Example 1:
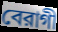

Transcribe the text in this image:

বেরাগী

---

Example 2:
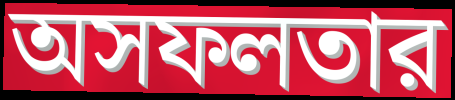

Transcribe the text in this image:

অসফলতার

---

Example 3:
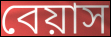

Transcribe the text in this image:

বেয়াস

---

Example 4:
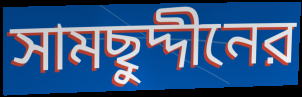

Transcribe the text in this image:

সামছুদ্দীনের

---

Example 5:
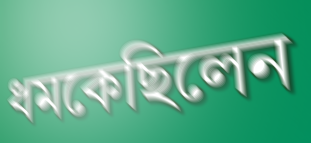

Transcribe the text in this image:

ধমকেছিলেন